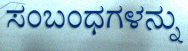
ಸಂಬಂಧಗಳನ್ನು